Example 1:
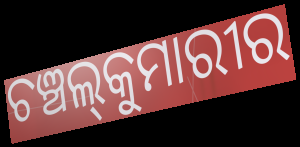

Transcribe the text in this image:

ଚଞ୍ଚଲ୍‍କୁମାରୀର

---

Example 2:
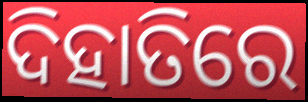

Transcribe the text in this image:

ଦିହାତିରେ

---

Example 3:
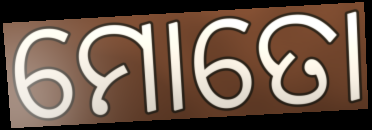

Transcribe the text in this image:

ମୋତୋ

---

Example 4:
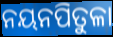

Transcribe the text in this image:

ନୟନପିତୁଳା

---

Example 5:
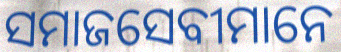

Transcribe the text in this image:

ସମାଜସେବୀମାନେ